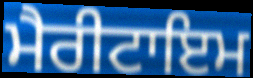
ਮੈਰੀਟਾਇਮ